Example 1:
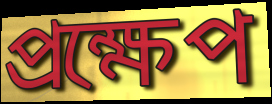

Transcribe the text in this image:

প্রক্ষেপ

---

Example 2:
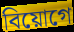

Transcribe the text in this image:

বিয়োগে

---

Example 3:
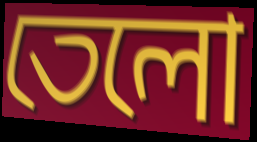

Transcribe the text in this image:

তেলো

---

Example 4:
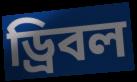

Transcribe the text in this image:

ড্রিবল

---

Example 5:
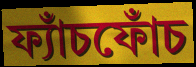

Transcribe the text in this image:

ফ্যাঁচফোঁচ